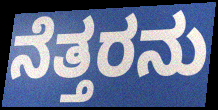
ನೆತ್ತರನು